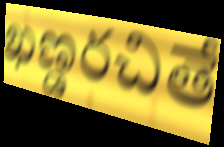
ఖణ్డరచితే